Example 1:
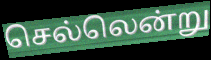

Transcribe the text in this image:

செல்லென்று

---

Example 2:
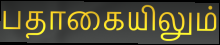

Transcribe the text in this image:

பதாகையிலும்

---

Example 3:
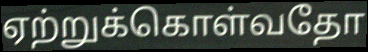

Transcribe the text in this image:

ஏற்றுக்கொள்வதோ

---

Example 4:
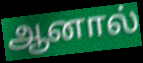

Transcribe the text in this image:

ஆனால்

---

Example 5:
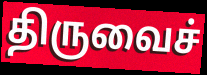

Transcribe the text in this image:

திருவைச்